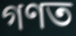
গণত